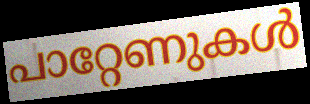
പാറ്റേണുകൾ